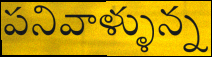
పనివాళ్ళున్న